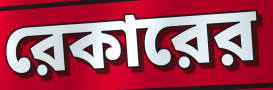
রেকারের